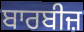
ਬਾਰਬੀਜ਼